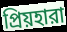
প্রিয়হারা